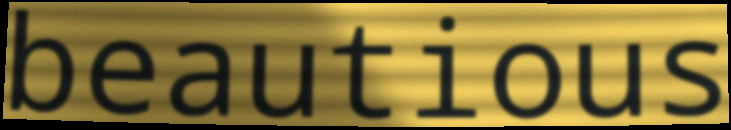
beautious